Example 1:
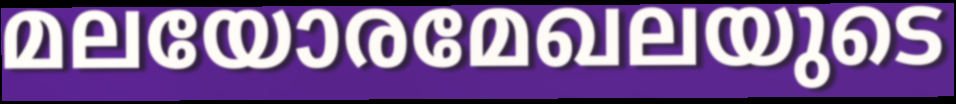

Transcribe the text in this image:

മലയോരമേഖലയുടെ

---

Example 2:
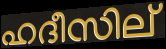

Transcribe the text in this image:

ഹദീസില്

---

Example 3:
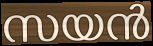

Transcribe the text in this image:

സയൻ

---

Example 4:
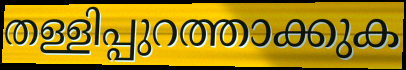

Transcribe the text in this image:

തള്ളിപ്പുറത്താക്കുക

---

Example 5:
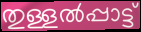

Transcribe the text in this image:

തുള്ളൽപ്പാട്ട്